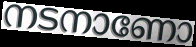
നടനാണോ